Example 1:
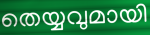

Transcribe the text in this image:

തെയ്യവുമായി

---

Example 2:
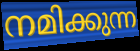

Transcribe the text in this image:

നമിക്കുന്ന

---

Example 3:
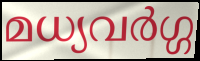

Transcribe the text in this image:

മധ്യവർഗ്ഗ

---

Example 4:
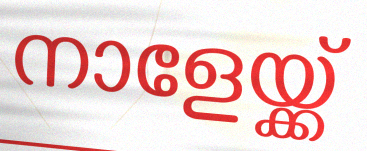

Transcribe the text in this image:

നാളേയ്ക്ക്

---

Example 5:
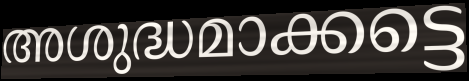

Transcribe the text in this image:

അശുദ്ധമാക്കട്ടെ